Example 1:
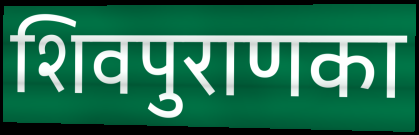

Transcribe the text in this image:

शिवपुराणका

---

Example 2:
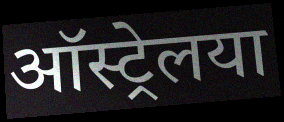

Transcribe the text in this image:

ऑस्ट्रेलया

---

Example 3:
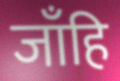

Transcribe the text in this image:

जाँहि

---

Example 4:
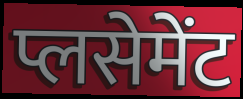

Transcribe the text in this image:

प्लसेमेंट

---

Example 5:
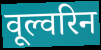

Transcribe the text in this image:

वूल्वरिन